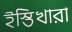
ইস্তিখারা